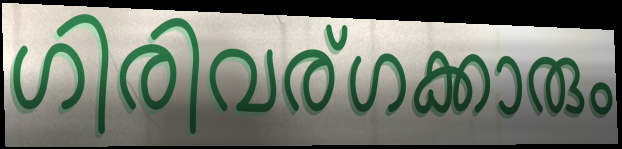
ഗിരിവര്ഗക്കാരും